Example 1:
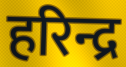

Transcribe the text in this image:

हरिन्द्र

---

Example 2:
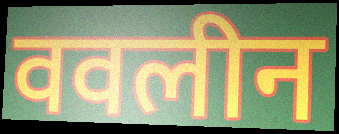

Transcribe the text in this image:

ववलीन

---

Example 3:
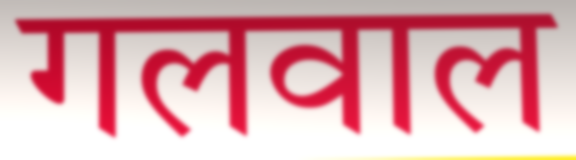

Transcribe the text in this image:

गलवाल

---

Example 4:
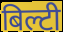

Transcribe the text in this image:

बिल्टी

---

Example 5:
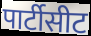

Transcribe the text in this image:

पार्टीसीट